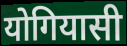
योगियासी